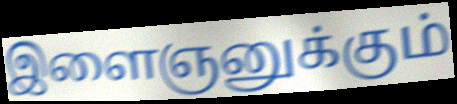
இளைஞனுக்கும்